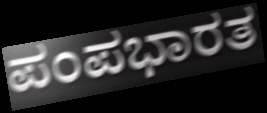
ಪಂಪಭಾರತ